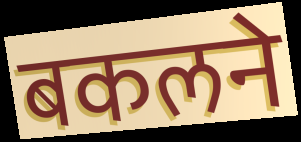
बकलने